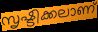
സൃഷ്ടിക്കലാണ്